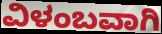
ವಿಳಂಬವಾಗಿ